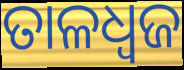
ତାଳଧ୍ୱଜ